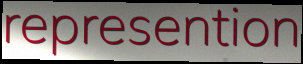
represention